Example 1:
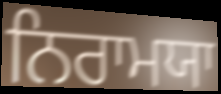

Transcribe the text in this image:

ਨਿਰਾਮਯਾ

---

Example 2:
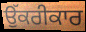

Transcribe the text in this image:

ਉੱਕਰੀਕਾਰ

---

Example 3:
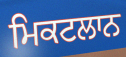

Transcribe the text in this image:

ਮਿਕਟਲਾਨ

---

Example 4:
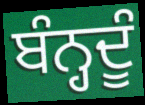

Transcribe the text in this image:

ਬੰਨ੍ਹਦੂੰ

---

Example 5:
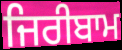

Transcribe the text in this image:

ਜਿਰੀਬਾਮ